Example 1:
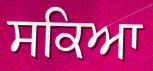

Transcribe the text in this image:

ਸਕਿਆ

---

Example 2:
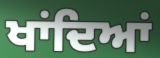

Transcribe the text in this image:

ਖਾਂਦਿਆਂ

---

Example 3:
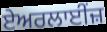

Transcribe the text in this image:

ਏਅਰਲਾਈਂਜ਼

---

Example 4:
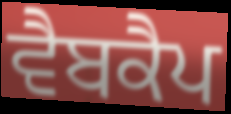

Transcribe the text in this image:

ਵੈਬਕੈਪ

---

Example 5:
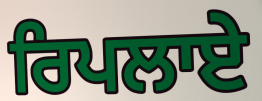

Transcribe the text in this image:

ਰਿਪਲਾਏ